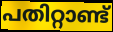
പതിറ്റാണ്ട്